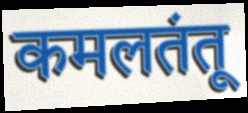
कमलतंतू